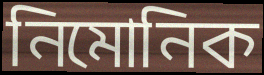
নিমোনিক